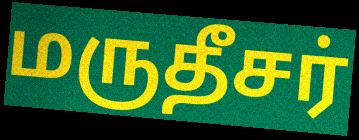
மருதீசர்